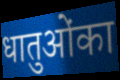
धातुओंका